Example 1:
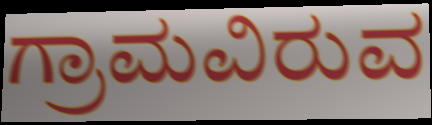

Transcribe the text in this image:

ಗ್ರಾಮವಿರುವ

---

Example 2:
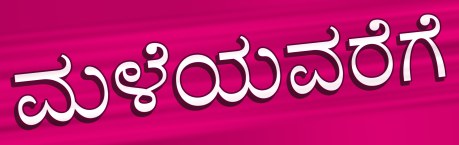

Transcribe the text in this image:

ಮಳೆಯವರೆಗೆ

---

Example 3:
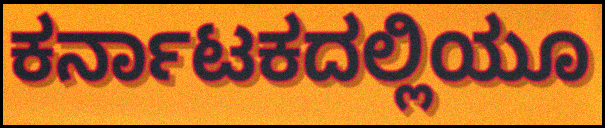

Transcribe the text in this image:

ಕರ್ನಾಟಕದಲ್ಲಿಯೂ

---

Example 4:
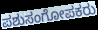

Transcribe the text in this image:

ಪಶುಸಂಗೋಪಕರು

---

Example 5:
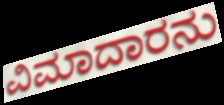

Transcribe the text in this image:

ವಿಮಾದಾರನು